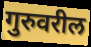
गुरुवरील